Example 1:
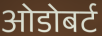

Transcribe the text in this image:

ओडोबर्ट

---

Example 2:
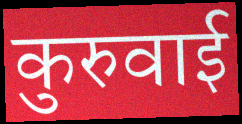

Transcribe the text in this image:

कुरुवाई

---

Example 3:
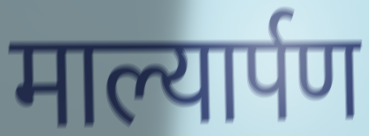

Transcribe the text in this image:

माल्यार्पण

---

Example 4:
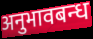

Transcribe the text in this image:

अनुभावबन्ध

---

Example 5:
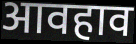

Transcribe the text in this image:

आवहाव